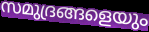
സമുദ്രങ്ങളെയും